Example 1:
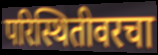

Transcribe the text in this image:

परिस्थितीवरचा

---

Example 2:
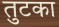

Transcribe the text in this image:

तुटका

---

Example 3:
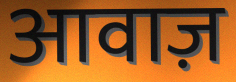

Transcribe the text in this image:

आवाज़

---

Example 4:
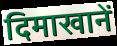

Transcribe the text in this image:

दिमाखानें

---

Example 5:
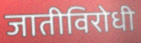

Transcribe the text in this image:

जातीविरोधी